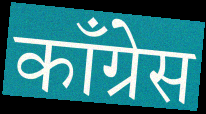
कॉंग्रेस